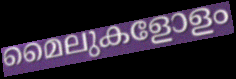
മൈലുകളോളം